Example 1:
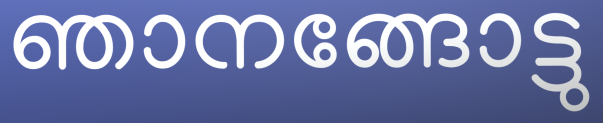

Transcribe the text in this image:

ഞാനങ്ങോട്ടു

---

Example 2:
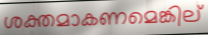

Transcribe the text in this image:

ശക്തമാകണമെങ്കില്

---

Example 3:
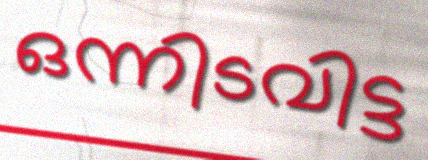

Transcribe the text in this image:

ഒന്നിടവിട്ട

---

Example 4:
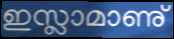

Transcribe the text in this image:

ഇസ്ലാമാണു്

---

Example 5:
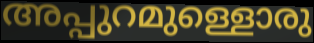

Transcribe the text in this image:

അപ്പുറമുള്ളൊരു